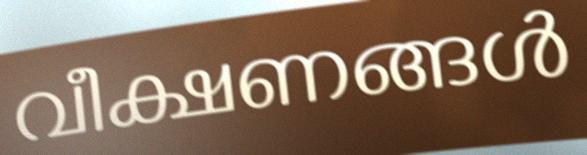
വീക്ഷണങ്ങൾ